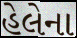
હેલેના